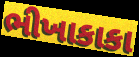
ભીખાકાકા